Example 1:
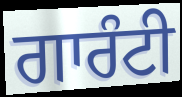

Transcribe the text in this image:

ਗਾਰੰਟੀ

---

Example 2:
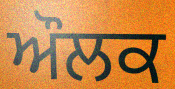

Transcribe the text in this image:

ਔਲਕ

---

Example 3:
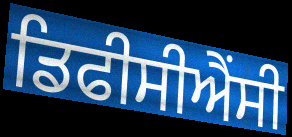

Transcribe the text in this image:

ਡਿਫੀਸੀਐਂਸੀ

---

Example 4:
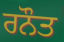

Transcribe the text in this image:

ਰਨੌਤ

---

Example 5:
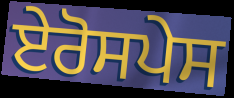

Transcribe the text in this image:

ਏਰੋਸਪੇਸ